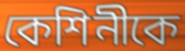
কেশিনীকে